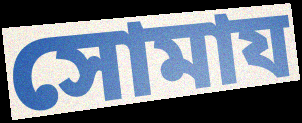
সোমায